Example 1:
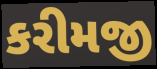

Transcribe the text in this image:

કરીમજી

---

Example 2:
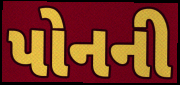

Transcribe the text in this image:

પોનની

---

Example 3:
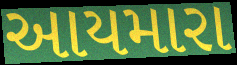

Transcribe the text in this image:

આયમારા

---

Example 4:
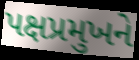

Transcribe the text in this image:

પક્ષપ્રમુખને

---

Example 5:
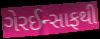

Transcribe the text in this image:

ગેરઈન્સાફથી